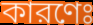
কারণেঃ